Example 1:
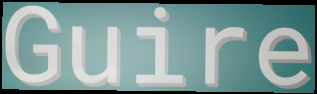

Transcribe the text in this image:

Guire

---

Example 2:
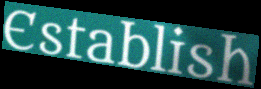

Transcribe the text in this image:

Establish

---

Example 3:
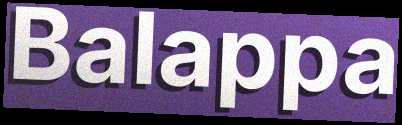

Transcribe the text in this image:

Balappa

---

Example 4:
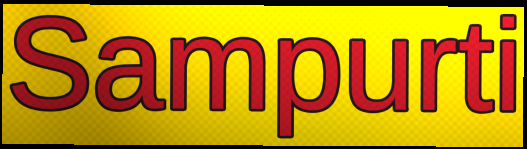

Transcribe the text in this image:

Sampurti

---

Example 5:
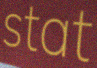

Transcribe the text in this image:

stat